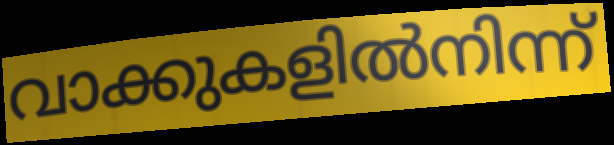
വാക്കുകളിൽനിന്ന്